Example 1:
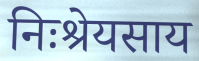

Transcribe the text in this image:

निःश्रेयसाय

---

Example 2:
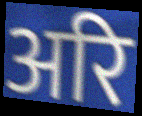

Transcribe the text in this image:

अरि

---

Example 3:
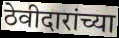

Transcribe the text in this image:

ठेवीदारांच्या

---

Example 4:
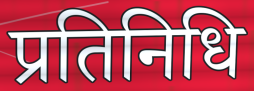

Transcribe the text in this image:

प्रतिनिधि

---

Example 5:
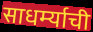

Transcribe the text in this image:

साधर्म्याची